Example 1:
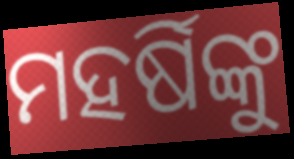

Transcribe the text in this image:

ମହର୍ଷିଙ୍କୁ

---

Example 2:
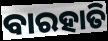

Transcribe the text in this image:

ବାରହାତି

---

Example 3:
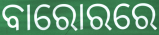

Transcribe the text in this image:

ବାରୋରରେ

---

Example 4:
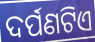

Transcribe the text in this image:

ଦର୍ପଣଟିଏ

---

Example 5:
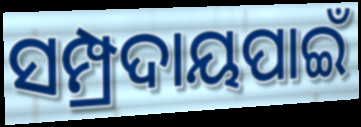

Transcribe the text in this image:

ସମ୍ପ୍ରଦାୟପାଇଁ